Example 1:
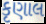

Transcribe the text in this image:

કૃણાલ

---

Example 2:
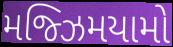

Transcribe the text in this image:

મજ્ઝિમયામો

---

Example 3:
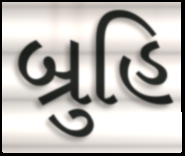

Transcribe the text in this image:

બ્રુહિ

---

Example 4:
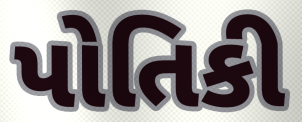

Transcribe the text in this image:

પોતિકી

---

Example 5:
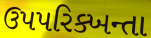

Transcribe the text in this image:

ઉપપરિક્ખન્તા